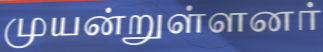
முயன்றுள்ளனர்